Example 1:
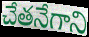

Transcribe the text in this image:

చేతనేగాని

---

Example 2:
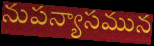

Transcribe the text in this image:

నుపన్యాసమున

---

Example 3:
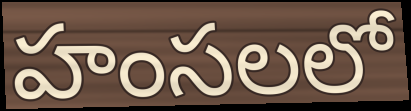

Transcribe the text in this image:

హంసలలో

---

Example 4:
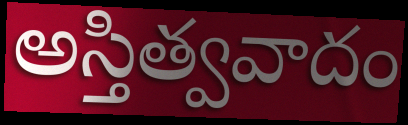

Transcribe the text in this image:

అస్తిత్వవాదం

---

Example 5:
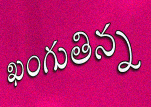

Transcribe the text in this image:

ఖంగుతిన్న